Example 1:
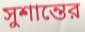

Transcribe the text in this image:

সুশান্তের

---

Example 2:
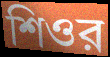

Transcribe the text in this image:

শিওর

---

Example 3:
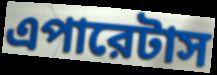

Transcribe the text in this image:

এপারেটাস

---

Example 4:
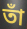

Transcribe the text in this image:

তাঁ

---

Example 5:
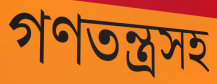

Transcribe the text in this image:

গণতন্ত্রসহ